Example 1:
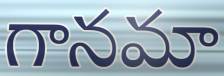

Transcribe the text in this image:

గానమా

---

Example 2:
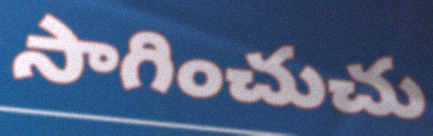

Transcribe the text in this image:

సాగించుచు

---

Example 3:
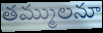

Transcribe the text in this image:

తమ్ములనూ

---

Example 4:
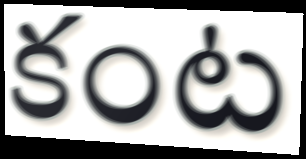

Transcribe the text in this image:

కంట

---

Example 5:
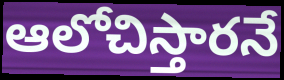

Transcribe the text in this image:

ఆలోచిస్తారనే